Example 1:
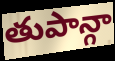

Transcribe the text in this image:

తుపాన్గా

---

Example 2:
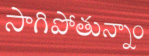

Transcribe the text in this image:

సాగిపోతున్నాం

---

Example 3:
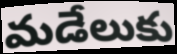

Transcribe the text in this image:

మడేలుకు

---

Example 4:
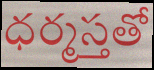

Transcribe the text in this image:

ధర్మస్తతో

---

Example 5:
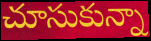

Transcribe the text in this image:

చూసుకున్నా